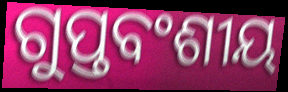
ଗୁପ୍ତବଂଶୀୟ